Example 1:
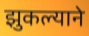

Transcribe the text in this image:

झुकल्याने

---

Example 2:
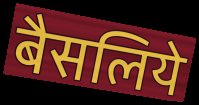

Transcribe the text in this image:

बैसलिये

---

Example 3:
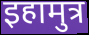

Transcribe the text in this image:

इहामुत्र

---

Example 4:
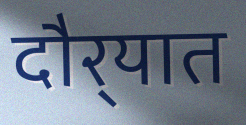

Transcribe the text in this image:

दौर्‍यात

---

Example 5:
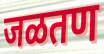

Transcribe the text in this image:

जळतण